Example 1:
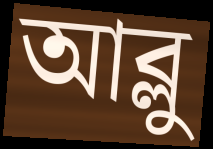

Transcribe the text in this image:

আব্লু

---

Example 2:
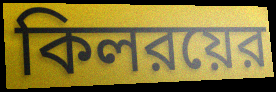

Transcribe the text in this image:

কিলরয়ের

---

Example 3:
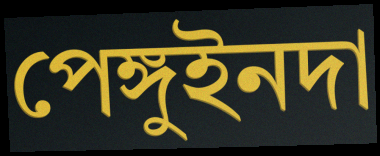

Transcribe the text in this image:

পেঙ্গুইনদা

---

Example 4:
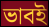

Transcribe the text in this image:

ভাবই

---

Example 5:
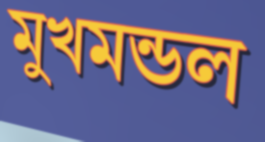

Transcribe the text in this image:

মুখমন্ডল